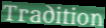
Tradition